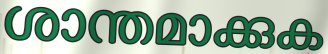
ശാന്തമാക്കുക